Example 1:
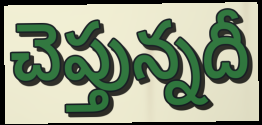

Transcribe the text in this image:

చెప్తున్నదీ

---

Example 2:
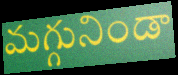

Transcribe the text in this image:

మగ్గునిండా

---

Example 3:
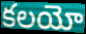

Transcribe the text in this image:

కలయో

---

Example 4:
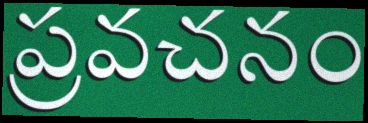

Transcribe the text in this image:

ప్రవచనం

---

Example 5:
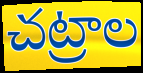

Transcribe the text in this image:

చట్రాల